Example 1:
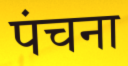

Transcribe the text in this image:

पंचना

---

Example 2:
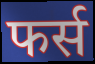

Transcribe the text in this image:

फर्स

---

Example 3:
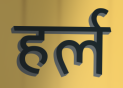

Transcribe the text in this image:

हर्ल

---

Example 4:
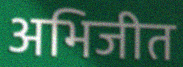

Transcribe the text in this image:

अभिजीत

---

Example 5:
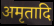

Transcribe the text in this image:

अमृतादि